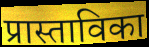
प्रास्ताविका